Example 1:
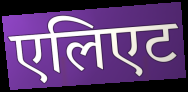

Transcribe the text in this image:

एलिएट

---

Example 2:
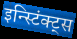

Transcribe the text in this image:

इन्स्टिंक्ट्स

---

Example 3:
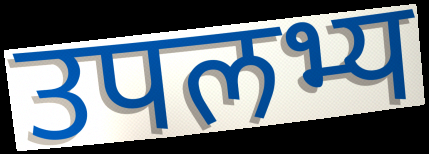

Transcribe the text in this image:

उपलभ्य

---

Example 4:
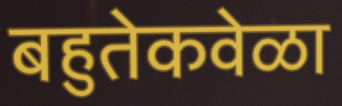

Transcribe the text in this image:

बहुतेकवेळा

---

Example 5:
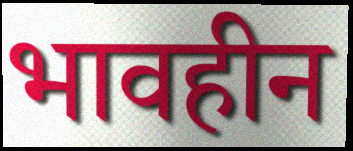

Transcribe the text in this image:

भावहीन